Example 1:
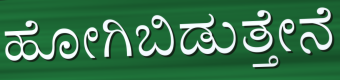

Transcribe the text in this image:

ಹೋಗಿಬಿಡುತ್ತೇನೆ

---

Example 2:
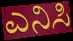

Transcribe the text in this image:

ಎನಿಸಿ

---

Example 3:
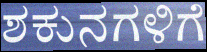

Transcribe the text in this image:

ಶಕುನಗಳಿಗೆ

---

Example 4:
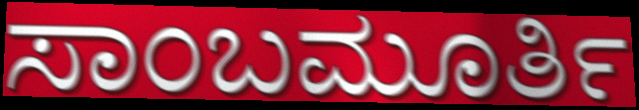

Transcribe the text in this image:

ಸಾಂಬಮೂರ್ತಿ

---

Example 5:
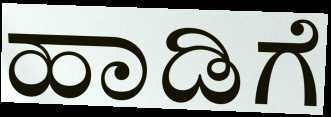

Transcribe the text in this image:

ಹಾಡಿಗೆ